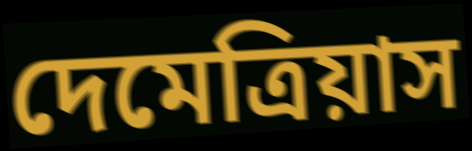
দেমেত্রিয়াস